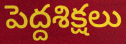
పెద్దశిక్షలు